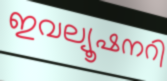
ഇവല്യൂഷനറി